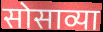
सोसाव्या